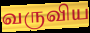
வருவிய